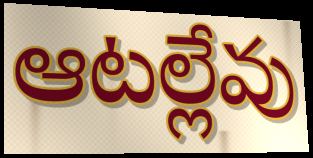
ఆటల్లేవు